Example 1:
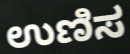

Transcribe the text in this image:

ಉಣಿಸ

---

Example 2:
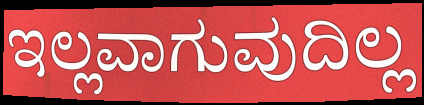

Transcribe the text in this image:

ಇಲ್ಲವಾಗುವುದಿಲ್ಲ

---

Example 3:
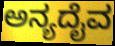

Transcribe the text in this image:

ಅನ್ಯದೈವ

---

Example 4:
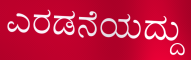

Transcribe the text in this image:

ಎರಡನೆಯದ್ದು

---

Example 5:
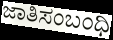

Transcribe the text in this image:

ಜಾತಿಸಂಬಂಧಿ